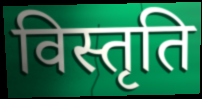
विस्तृति